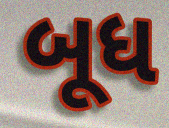
બૂધ